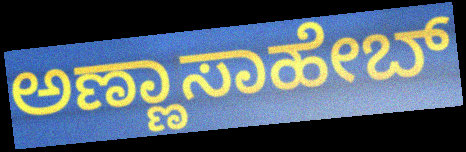
ಅಣ್ಣಾಸಾಹೇಬ್